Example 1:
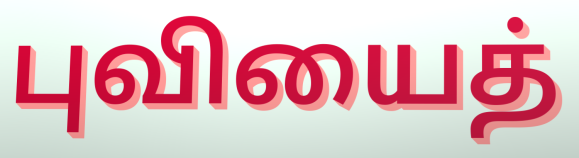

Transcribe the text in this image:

புவியைத்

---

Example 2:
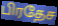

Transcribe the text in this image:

பிரதேச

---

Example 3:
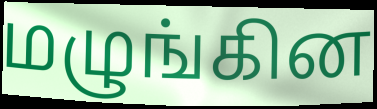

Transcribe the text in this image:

மழுங்கின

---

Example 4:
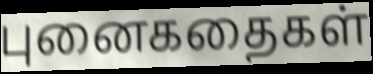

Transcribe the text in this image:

புனைகதைகள்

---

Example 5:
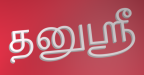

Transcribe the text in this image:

தனுஸ்ரீ